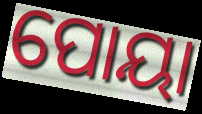
ପୋୟା